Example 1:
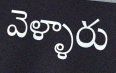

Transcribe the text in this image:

వెళ్ళారు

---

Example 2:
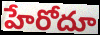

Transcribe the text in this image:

హేరోదూ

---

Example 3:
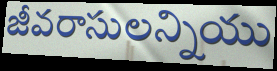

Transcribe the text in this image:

జీవరాసులన్నియు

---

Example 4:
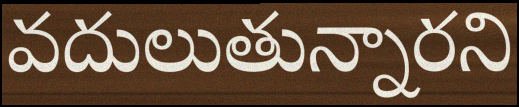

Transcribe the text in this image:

వదులుతున్నారని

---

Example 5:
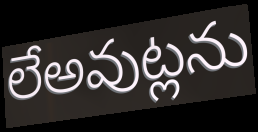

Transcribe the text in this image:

లేఅవుట్లను